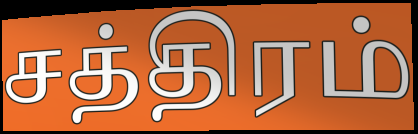
சத்திரம்